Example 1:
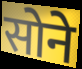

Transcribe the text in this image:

सोने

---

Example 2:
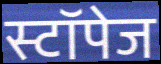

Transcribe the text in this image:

स्टॉपेज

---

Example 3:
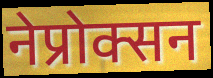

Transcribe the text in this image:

नेप्रोक्सन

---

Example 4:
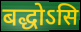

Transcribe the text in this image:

बद्धोऽसि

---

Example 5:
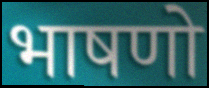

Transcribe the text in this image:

भाषणो